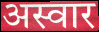
अस्वार